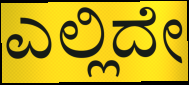
ಎಲ್ಲಿದೇ